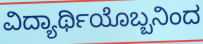
ವಿದ್ಯಾರ್ಥಿಯೊಬ್ಬನಿಂದ